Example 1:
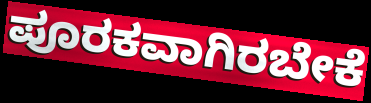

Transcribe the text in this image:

ಪೂರಕವಾಗಿರಬೇಕೆ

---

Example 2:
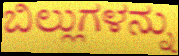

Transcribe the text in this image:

ಬಿಲ್ಲುಗಳನ್ನು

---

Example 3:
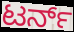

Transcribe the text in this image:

ಟರ್ನ್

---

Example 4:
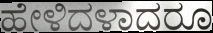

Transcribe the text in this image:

ಹೇಳಿದಳಾದರೂ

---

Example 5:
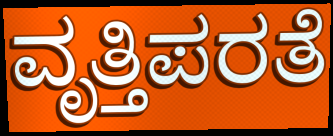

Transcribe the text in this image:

ವೃತ್ತಿಪರತೆ